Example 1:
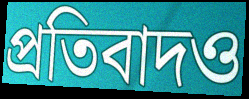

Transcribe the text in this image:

প্রতিবাদও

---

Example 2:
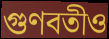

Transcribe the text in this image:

গুণবতীও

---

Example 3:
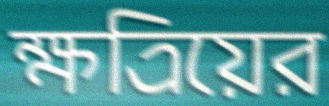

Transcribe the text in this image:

ক্ষত্রিয়ের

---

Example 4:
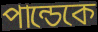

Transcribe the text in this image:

পান্ডেকে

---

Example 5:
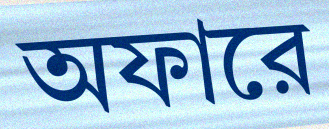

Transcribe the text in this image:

অফারে